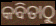
କବିତାଠୁ